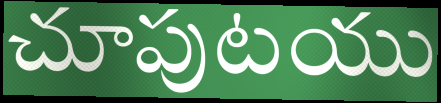
చూపుటయు